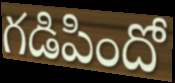
గడిపిందో